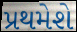
પ્રથમેશે